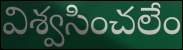
విశ్వసించలేం